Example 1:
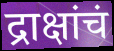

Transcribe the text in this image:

द्राक्षांचं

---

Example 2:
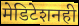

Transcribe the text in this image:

मेडिटेशनही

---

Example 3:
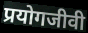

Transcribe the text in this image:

प्रयोगजीवी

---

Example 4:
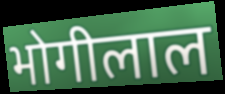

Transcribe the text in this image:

भोगीलाल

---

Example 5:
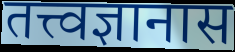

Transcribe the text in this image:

तत्त्वज्ञानास